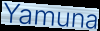
Yamuna